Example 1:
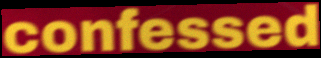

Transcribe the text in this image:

confessed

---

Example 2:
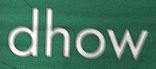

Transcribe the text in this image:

dhow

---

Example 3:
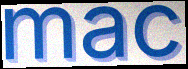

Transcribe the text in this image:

mac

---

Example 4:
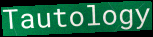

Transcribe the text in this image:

Tautology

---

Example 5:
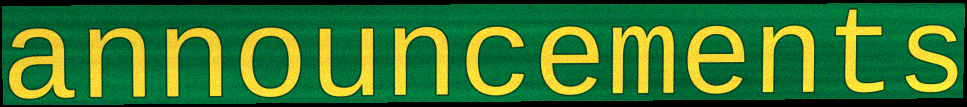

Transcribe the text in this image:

announcements